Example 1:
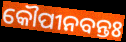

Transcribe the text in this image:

କୌପୀନବନ୍ତଃ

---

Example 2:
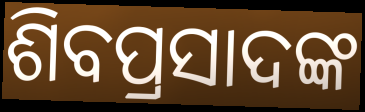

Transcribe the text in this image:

ଶିବପ୍ରସାଦଙ୍କ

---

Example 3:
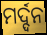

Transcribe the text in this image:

ମର୍ଦ୍ଦନ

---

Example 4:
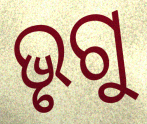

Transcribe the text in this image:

ଭୃଗୁ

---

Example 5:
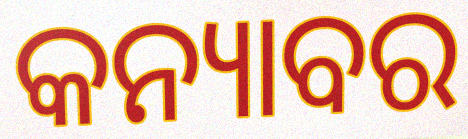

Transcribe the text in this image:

କନ୍ୟାବର